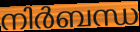
നിർബന്ധ